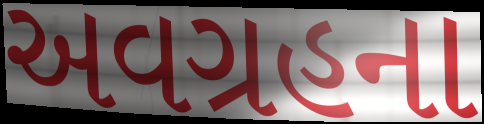
અવગ્રહના